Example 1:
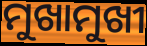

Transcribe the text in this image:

ମୁଖାମୁଖୀ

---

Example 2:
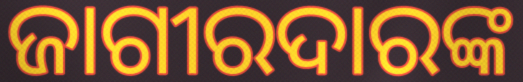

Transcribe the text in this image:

ଜାଗୀରଦାରଙ୍କ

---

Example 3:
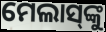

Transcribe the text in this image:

ମେଲାସ୍‌ଙ୍କୁ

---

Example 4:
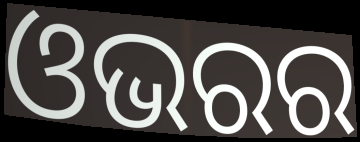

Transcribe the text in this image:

ଓଭରର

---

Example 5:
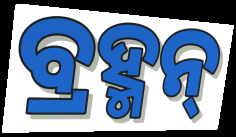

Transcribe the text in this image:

ବ୍ରହ୍ମନ୍